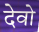
देवो